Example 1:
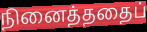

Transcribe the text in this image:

நினைத்ததைப்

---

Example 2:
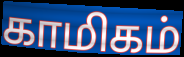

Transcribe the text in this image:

காமிகம்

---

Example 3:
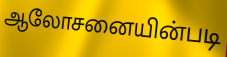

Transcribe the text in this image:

ஆலோசனையின்படி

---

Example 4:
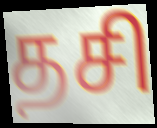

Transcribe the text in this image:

தசி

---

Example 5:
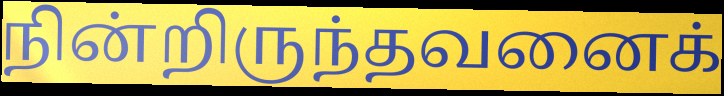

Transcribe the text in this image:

நின்றிருந்தவனைக்